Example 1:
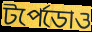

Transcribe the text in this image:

টর্পেডোও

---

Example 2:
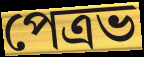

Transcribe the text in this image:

পেত্রভ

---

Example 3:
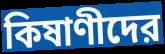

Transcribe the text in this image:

কিষাণীদের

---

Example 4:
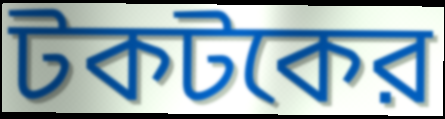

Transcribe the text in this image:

টকটকের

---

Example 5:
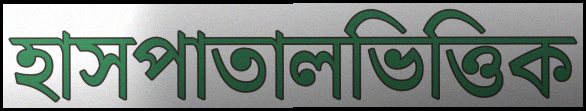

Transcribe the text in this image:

হাসপাতালভিত্তিক